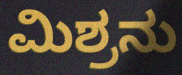
ಮಿಶ್ರನು